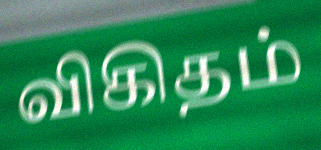
விகிதம்